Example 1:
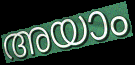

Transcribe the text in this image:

അയാം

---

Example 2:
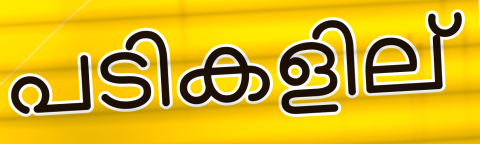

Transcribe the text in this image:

പടികളില്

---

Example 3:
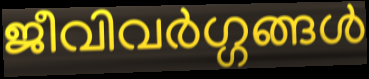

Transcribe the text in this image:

ജീവിവർഗ്ഗങ്ങൾ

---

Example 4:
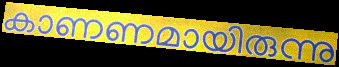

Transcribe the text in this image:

കാണണമായിരുന്നു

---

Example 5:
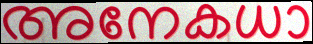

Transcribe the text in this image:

അനേകധാ